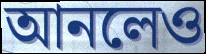
আনলেও